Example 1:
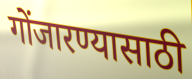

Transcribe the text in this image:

गोंजारण्यासाठी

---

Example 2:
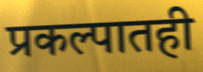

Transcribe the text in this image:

प्रकल्पातही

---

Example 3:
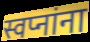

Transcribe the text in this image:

स्वप्नांना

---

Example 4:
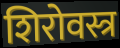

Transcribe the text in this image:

शिरोवस्त्र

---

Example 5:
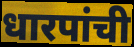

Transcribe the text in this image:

धारपांची